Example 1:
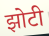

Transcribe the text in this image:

झोटी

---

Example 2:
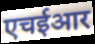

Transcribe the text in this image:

एचईआर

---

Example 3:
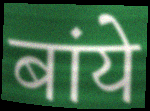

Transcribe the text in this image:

बांये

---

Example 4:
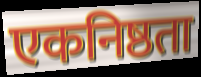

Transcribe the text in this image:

एकनिष्ठता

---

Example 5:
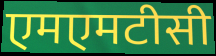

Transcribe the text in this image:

एमएमटीसी